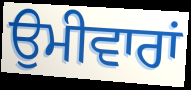
ਉਮੀਵਾਰਾਂ